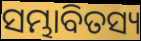
ସମ୍ଭାବିତସ୍ୟ